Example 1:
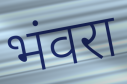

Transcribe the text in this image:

भंवरा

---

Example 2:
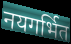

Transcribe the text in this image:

नयगर्भित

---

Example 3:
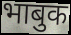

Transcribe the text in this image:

भाबुक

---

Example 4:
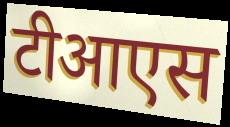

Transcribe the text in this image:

टीआएस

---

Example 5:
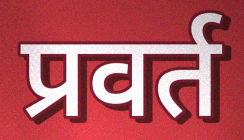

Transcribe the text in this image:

प्रवर्त